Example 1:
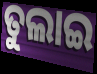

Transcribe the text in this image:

ତୁଲାଇ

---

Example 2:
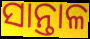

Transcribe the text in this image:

ସାନ୍ତାଳ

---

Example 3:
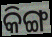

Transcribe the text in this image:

କିଙ୍ଗ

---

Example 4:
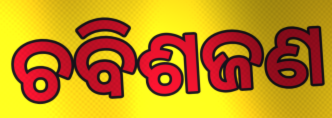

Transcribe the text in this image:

ଚବିଶଜଣ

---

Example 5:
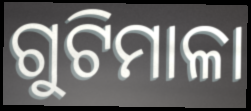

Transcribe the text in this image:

ଗୁଟିମାଳା